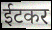
ईटकर